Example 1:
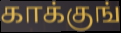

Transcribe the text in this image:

காக்குங்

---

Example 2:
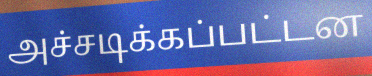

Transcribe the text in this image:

அச்சடிக்கப்பட்டன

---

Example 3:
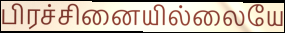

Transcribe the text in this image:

பிரச்சினையில்லையே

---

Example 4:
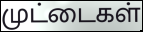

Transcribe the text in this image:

முட்டைகள்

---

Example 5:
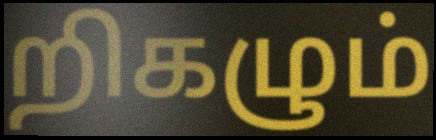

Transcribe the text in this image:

றிகழும்